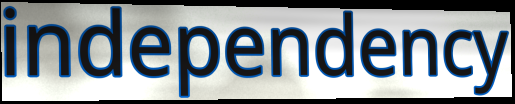
independency